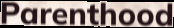
Parenthood